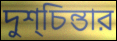
দুশ্‌চিন্তার